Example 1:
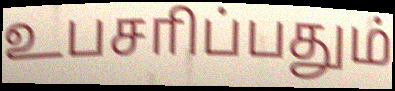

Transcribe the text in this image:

உபசரிப்பதும்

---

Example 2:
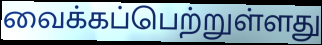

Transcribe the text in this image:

வைக்கப்பெற்றுள்ளது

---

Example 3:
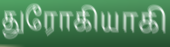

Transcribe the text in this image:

துரோகியாகி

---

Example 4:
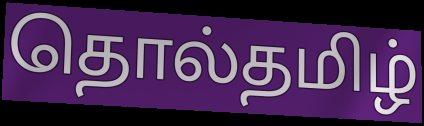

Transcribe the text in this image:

தொல்தமிழ்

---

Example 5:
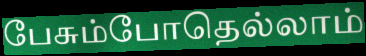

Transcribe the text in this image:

பேசும்போதெல்லாம்